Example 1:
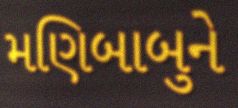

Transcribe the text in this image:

મણિબાબુને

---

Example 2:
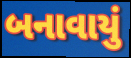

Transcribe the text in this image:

બનાવાયું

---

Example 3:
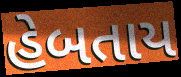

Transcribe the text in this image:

હેબતાય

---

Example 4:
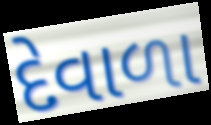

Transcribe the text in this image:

દેવાળા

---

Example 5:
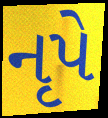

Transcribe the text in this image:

નૃપે